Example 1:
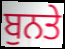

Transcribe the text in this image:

ਬੁਨਤੇ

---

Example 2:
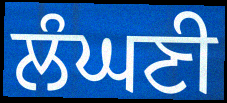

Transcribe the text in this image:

ਲੰਘਣੀ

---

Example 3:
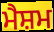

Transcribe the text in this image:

ਮੈਸ਼ਮ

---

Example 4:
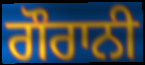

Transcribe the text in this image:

ਗੌਰਾਨੀ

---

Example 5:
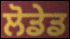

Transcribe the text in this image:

ਲੋਡੇਡ